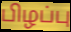
பிழப்பு